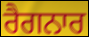
ਰੈਗਨਾਰ